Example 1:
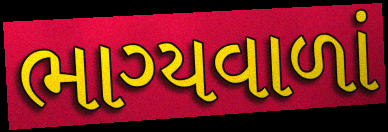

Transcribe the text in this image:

ભાગ્યવાળાં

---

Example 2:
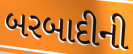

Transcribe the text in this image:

બરબાદીની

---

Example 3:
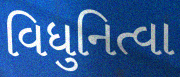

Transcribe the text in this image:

વિધુનિત્વા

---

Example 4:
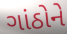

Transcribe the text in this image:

ગાંઠોને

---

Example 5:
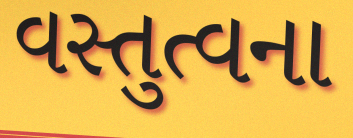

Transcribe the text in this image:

વસ્તુત્વના